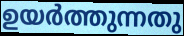
ഉയർത്തുന്നതു